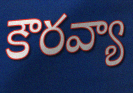
కౌరవ్యా